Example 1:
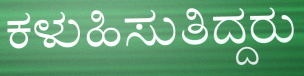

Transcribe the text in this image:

ಕಳುಹಿಸುತಿದ್ದರು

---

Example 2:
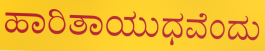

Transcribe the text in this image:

ಹಾರಿತಾಯುಧವೆಂದು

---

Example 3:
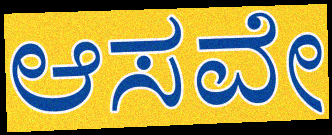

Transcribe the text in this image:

ಆಸವೇ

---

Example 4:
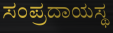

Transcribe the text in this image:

ಸಂಪ್ರದಾಯಸ್ಥ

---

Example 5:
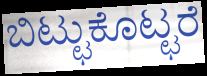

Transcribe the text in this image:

ಬಿಟ್ಟುಕೊಟ್ಟರೆ